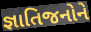
જ્ઞાતિજનોને